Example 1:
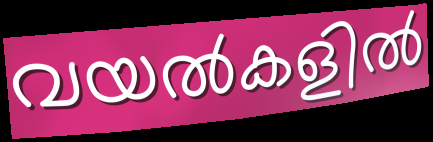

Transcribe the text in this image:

വയൽകളിൽ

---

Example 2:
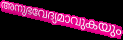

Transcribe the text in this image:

അനുഭവേദ്യമാവുകയും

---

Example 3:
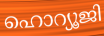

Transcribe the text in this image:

ഹൊറ്യൂജി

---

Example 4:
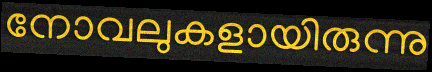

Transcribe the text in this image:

നോവലുകളായിരുന്നു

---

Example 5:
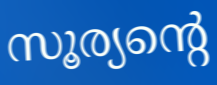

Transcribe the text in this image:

സൂര്യന്റെ